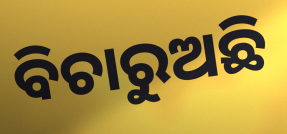
ବିଚାରୁଅଛି